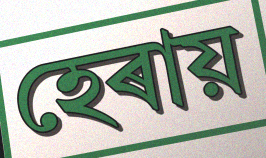
হেৰায়